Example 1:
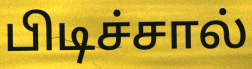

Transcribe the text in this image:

பிடிச்சால்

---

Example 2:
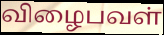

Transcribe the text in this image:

விழைபவள்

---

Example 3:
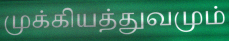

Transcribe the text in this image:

முக்கியத்துவமும்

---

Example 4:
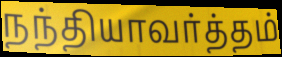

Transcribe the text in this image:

நந்தியாவர்த்தம்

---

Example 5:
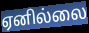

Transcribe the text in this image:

ஏனில்லை